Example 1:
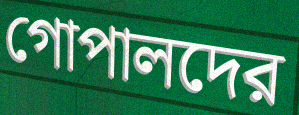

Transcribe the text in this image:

গোপালদের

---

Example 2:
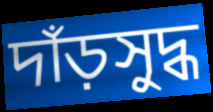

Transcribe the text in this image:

দাঁড়সুদ্ধ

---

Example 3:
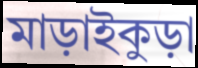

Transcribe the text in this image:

মাড়াইকুড়া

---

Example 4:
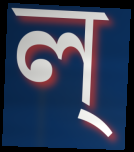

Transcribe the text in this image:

ল্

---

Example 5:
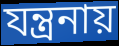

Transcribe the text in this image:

যন্ত্রনায়